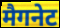
मैगनेट